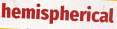
hemispherical